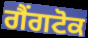
ਗੈਂਗਟੋਕ